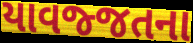
યાવજ્જતના